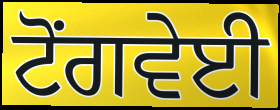
ਟੋਂਗਵੇਈ